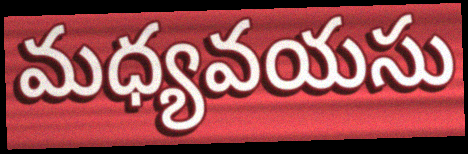
మధ్యవయసు